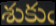
శుకుఁ